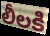
లీలకి